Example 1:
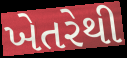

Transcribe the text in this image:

ખેતરેથી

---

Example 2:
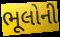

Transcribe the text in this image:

ભૂલોની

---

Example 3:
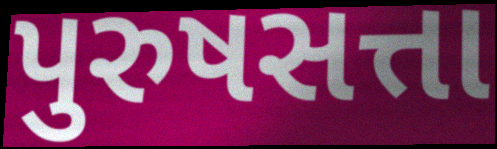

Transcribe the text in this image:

પુરુષસત્તા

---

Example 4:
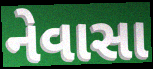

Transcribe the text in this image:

નેવાસા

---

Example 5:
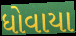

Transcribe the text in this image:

ધોવાયા